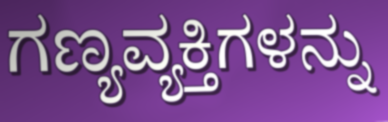
ಗಣ್ಯವ್ಯಕ್ತಿಗಳನ್ನು